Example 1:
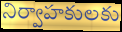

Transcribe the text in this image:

నిర్వాహకులకు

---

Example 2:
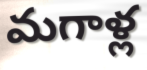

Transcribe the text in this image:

మగాళ్ల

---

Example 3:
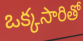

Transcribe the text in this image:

ఒక్కసారితో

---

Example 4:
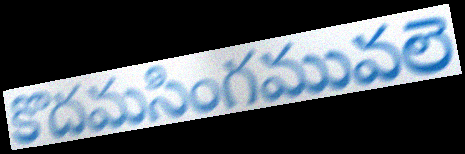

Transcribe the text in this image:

కొదమసింగమువలె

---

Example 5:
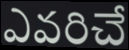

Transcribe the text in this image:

ఎవరిచే